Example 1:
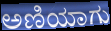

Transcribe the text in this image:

ಅಣಿಯಾಗು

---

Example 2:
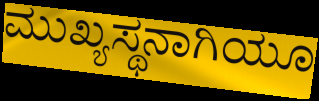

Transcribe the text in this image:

ಮುಖ್ಯಸ್ಥನಾಗಿಯೂ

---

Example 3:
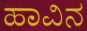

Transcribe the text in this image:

ಹಾವಿನ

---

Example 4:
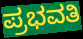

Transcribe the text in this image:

ಪ್ರಭವತಿ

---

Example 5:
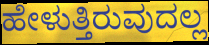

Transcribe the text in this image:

ಹೇಳುತ್ತಿರುವುದಲ್ಲ